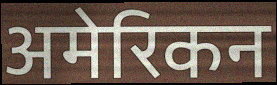
अमेरिकन